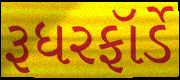
રૂધરફૉર્ડે